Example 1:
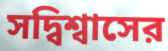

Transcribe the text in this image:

সদ্বিশ্বাসের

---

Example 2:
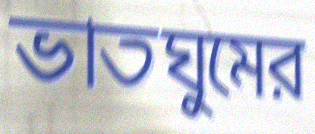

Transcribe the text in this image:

ভাতঘুমের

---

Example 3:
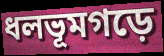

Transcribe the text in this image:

ধলভূমগড়ে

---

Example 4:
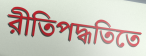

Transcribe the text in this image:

রীতিপদ্ধতিতে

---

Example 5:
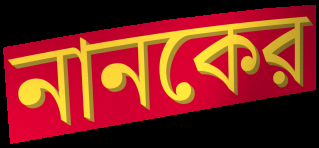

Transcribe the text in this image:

নানকের